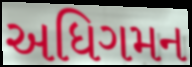
અધિગમન